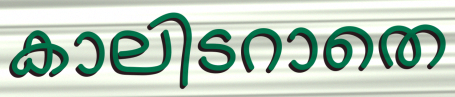
കാലിടറാതെ